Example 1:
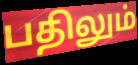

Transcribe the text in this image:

பதிலும்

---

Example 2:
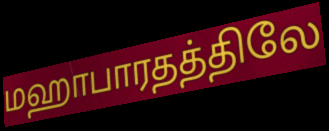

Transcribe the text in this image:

மஹாபாரதத்திலே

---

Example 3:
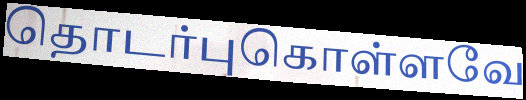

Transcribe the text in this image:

தொடர்புகொள்ளவே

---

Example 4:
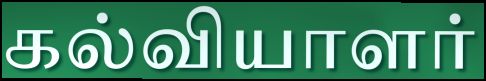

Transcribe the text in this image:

கல்வியாளர்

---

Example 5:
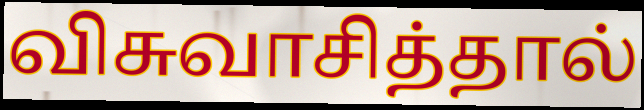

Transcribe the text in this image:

விசுவாசித்தால்